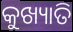
କୁଖ୍ୟାତି